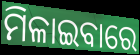
ମିଳାଇବାରେ